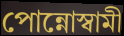
পোন্নোস্বামী